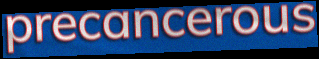
precancerous